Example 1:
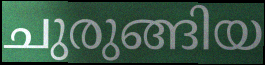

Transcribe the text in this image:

ചുരുങ്ങിയ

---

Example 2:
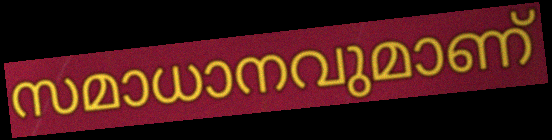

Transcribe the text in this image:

സമാധാനവുമാണ്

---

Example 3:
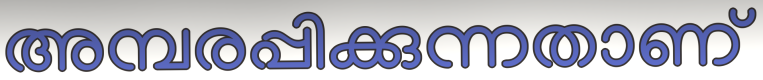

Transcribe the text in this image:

അമ്പരപ്പിക്കുന്നതാണ്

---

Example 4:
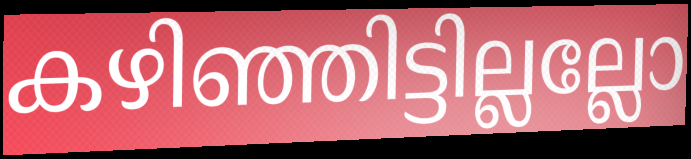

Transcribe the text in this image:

കഴിഞ്ഞിട്ടില്ലല്ലോ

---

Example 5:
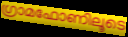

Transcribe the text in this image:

ഗ്രാമഫോണിലൂടെ